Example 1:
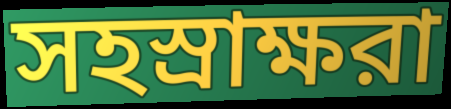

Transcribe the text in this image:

সহস্রাক্ষরা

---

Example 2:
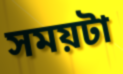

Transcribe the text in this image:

সময়টা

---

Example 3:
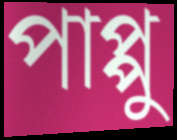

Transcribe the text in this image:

পাপ্পু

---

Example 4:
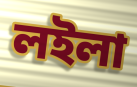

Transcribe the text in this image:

লইলা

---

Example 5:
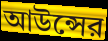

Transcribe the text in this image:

আউন্সের